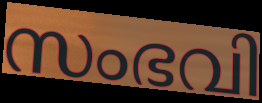
സംഭവി